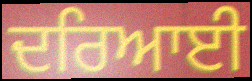
ਦਰਿਆਈ